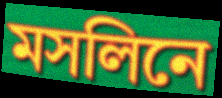
মসলিনে